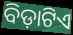
ବିଡ଼ାଟିଏ